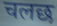
चलछ